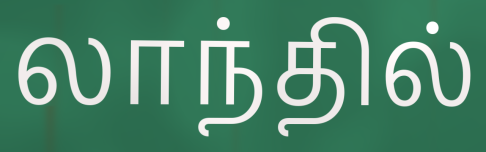
லாந்தில்